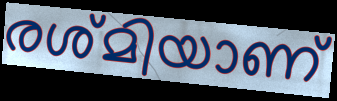
രശ്മിയാണ്